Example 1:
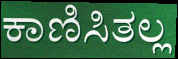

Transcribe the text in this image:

ಕಾಣಿಸಿತಲ್ಲ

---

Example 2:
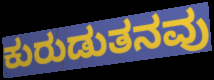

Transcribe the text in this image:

ಕುರುಡುತನವು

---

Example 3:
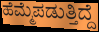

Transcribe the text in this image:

ಹೆಮ್ಮೆಪಡುತ್ತಿದ್ದೆ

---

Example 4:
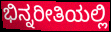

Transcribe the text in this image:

ಭಿನ್ನರೀತಿಯಲ್ಲಿ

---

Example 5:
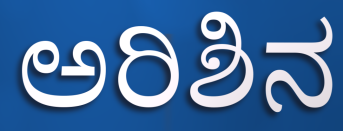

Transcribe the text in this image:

ಅರಿಶಿನ